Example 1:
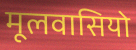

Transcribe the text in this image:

मूलवासियो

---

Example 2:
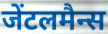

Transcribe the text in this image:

जेंटलमैन्स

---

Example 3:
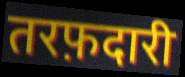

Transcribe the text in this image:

तरफ़दारी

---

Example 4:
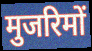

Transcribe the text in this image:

मुजरिमों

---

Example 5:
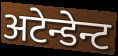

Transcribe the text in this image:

अटेन्डेन्ट